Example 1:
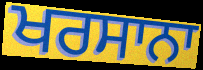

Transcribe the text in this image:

ਖਰਸਾਨਾ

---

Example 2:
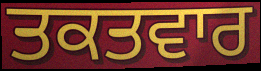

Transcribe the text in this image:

ਤਕਤਵਾਰ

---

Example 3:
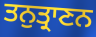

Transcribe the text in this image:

ਤਨੁਤ੍ਰਾਣਨ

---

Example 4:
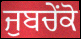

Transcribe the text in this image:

ਜੁਬਚੇਂਕੋ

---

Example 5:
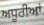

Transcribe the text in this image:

ਅਧੂਰੀਆਂ